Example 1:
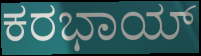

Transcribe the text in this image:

ಕರಭಾಯ್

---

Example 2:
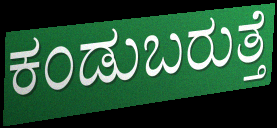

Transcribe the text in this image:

ಕಂಡುಬರುತ್ತೆ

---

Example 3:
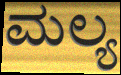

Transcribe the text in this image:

ಮಲ್ಯ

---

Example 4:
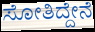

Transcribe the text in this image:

ಸೋತಿದ್ದೇನೆ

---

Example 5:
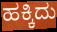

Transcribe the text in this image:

ಹಕ್ಕಿದು